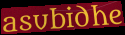
asubidhe